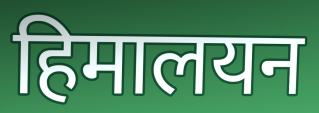
हिमालयन